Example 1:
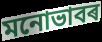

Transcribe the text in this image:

মনোভাবৰ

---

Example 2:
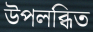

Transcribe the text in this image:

উপলব্ধিত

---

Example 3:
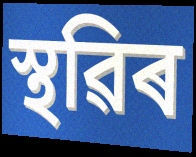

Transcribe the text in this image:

স্থৱিৰ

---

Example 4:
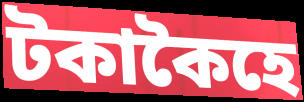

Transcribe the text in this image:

টকাকৈহে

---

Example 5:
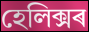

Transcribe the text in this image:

হেলিক্সৰ